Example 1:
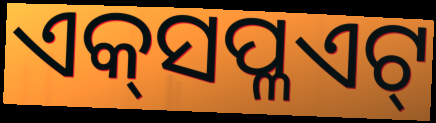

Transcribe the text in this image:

ଏକ୍‍ସପ୍ଳଏଟ୍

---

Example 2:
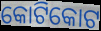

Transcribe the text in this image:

କୋଟିକୋଟ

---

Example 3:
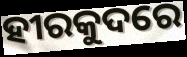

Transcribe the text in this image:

ହୀରକୁଦରେ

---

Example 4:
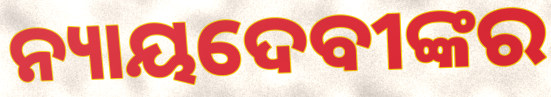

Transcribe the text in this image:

ନ୍ୟାୟଦେବୀଙ୍କର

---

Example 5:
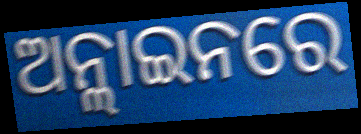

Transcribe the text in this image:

ଅନ୍ଲାଇନରେ